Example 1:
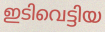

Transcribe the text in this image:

ഇടിവെട്ടിയ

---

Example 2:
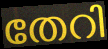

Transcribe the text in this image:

തേറി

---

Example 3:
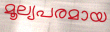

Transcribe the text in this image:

മൂല്യപരമായ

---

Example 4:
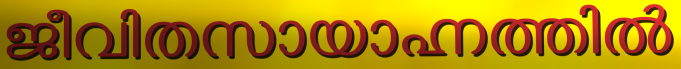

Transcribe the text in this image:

ജീവിതസായാഹ്നത്തിൽ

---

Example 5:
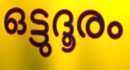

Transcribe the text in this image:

ഒട്ടുദൂരം